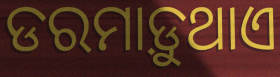
ଡରମାଡ଼ୁଥାଏ